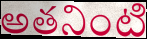
అతనింటి